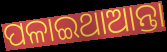
ପଳାଇଥାଆନ୍ତା